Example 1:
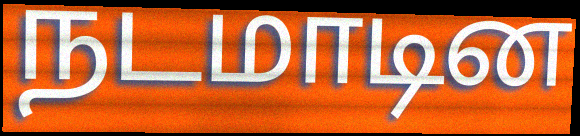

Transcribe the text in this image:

நடமாடின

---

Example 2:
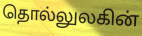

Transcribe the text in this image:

தொல்லுலகின்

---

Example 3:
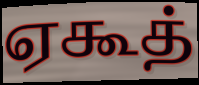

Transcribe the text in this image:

ஏகூத்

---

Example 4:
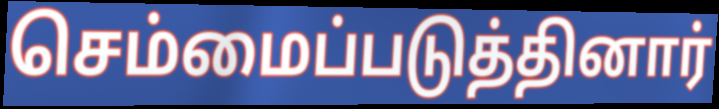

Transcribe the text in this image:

செம்மைப்படுத்தினார்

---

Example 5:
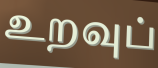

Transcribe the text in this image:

உறவுப்